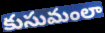
కుసుమంలా